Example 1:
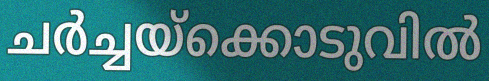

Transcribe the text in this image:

ചർച്ചയ്ക്കൊടുവിൽ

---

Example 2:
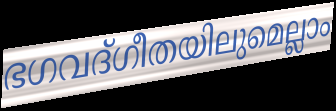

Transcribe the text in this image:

ഭഗവദ്ഗീതയിലുമെല്ലാം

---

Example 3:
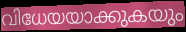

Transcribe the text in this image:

വിധേയയാക്കുകയും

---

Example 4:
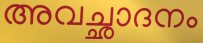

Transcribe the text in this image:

അവച്ഛാദനം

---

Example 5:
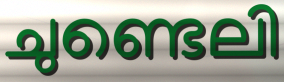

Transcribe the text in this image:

ചുണ്ടെലി